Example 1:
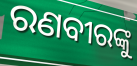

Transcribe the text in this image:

ରଣବୀରଙ୍କୁ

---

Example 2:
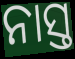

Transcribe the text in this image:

ନାସ୍ତ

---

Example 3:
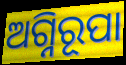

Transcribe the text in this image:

ଅଗ୍ନିରୂପା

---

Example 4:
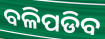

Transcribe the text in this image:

ବଳିପଡିବ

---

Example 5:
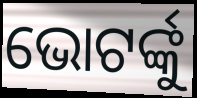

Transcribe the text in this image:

ଭୋଟର୍ଙ୍କୁ